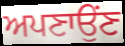
ਅਪਣਾਉਂਣ